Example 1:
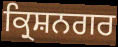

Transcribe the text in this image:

ਕ੍ਰਿਸ਼ਨਗਰ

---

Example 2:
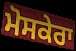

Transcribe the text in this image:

ਮੋਸਕੇਰਾ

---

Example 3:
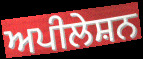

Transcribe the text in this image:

ਅਪੀਲੇਸ਼ਨ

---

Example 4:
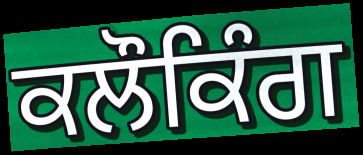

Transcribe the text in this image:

ਕਲੌਕਿੰਗ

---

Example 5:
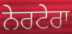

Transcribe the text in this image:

ਨੇਰਟੇਰਾ